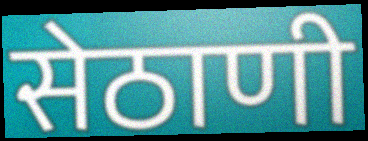
सेठाणी